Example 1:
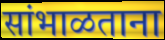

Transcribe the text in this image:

सांभाळताना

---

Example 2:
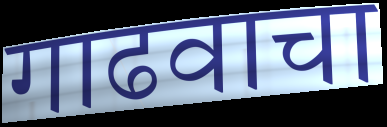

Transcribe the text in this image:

गाढवाचा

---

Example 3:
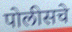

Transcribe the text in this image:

पोलीसचे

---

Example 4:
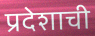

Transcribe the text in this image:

प्रदेशाची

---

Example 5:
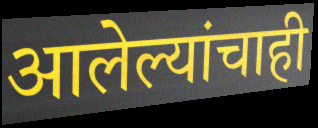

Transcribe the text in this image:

आलेल्यांचाही